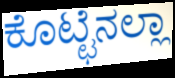
ಕೊಟ್ಟೆನಲ್ಲಾ